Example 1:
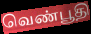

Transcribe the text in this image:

வெண்பூதி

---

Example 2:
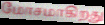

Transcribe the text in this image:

மோசமாகிறது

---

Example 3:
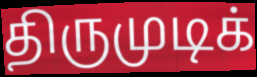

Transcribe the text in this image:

திருமுடிக்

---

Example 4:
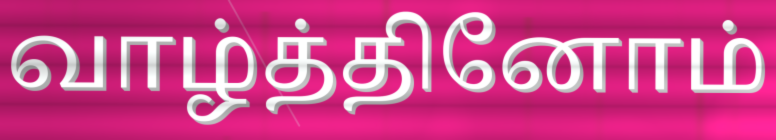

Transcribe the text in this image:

வாழ்த்தினோம்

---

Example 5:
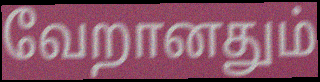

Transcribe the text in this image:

வேறானதும்